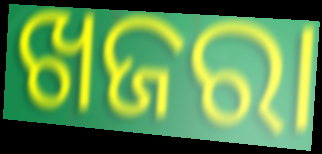
ଖଜରା